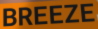
BREEZE